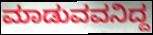
ಮಾಡುವವನಿದ್ದ